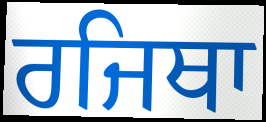
ਰਜਿਥਾ